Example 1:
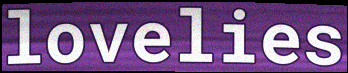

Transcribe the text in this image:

lovelies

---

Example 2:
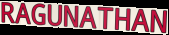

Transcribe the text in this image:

RAGUNATHAN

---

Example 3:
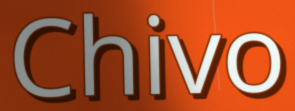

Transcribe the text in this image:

Chivo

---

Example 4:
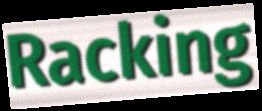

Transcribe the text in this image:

Racking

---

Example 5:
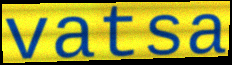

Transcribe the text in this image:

vatsa